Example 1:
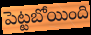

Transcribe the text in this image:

పెట్టబోయింది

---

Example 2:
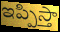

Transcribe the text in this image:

ఇప్పిస్తా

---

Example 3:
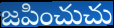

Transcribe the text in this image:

జపించుచు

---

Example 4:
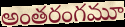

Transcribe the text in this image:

అంతరంగమూ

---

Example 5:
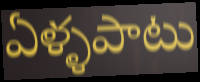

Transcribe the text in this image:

ఏళ్ళపాటు